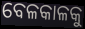
ବେଳକାଳକୁ